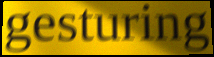
gesturing